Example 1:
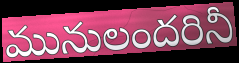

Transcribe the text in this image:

మునులందరినీ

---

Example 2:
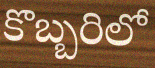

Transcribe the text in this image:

కొబ్బరిలో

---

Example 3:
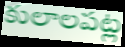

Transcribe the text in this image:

కులాలపట్ల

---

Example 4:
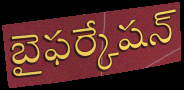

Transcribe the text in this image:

బైఫర్కేషన్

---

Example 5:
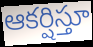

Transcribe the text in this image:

ఆకర్షిస్తూ